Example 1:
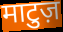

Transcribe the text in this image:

माटुज़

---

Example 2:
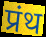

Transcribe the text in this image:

प्रंथ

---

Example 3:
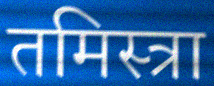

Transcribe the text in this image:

तमिस्त्रा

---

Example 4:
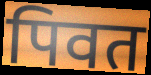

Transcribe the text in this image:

पिवत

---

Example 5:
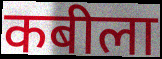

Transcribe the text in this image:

कबीला